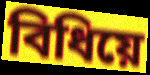
বিধিয়ে